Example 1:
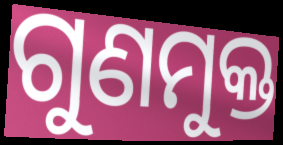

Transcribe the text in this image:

ଗୁଣମୁକ୍ତ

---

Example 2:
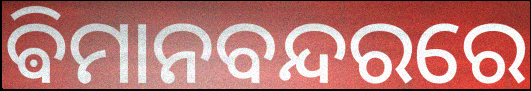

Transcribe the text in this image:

ଵିମାନବନ୍ଦରରେ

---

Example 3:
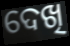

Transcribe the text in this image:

ଦେଖି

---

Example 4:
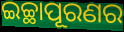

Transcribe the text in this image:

ଇଚ୍ଛାପୂରଣର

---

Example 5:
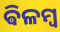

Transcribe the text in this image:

ଵିଳମ୍ବ